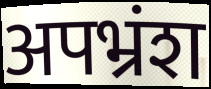
अपभ्रंश